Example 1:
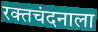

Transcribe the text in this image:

रक्तचंदनाला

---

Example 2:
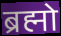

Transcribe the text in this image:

ब्रह्मो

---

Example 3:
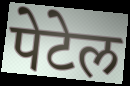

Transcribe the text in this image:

पेटेल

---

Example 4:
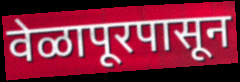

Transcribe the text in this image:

वेळापूरपासून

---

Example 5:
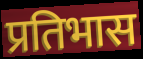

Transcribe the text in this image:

प्रतिभास